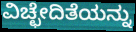
ವಿಚ್ಛೇದಿತೆಯನ್ನು